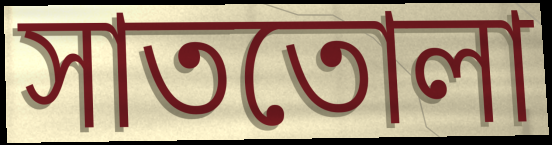
সাততোলা